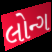
લોન્ગ